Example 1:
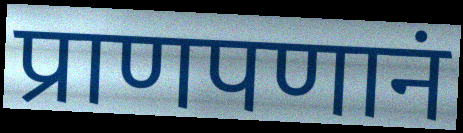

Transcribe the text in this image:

प्राणपणानं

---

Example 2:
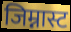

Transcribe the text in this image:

जिम्नास्ट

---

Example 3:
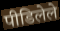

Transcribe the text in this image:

पीडिलेले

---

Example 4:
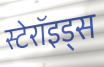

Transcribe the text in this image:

स्टेरॉइड्स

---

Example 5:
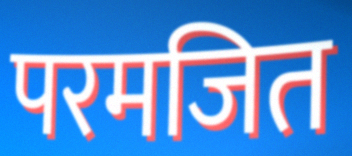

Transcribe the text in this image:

परमजित